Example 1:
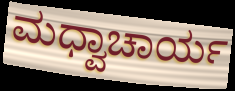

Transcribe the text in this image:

ಮಧ್ವಾಚಾರ್ಯ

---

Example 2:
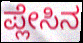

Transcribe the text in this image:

ಪ್ಲೇಸಿನ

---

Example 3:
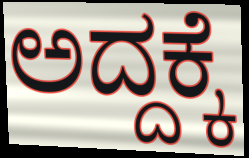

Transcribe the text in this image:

ಅದ್ದಕ್ಕೆ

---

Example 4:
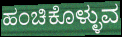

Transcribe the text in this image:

ಹಂಚಿಕೊಳ್ಳುವ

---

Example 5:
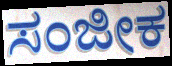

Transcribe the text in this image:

ಸಂಜೀಕ